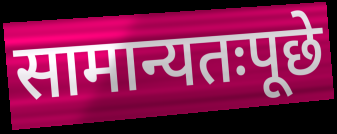
सामान्यतःपूछे